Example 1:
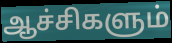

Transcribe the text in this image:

ஆச்சிகளும்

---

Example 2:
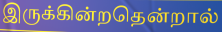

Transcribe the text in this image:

இருக்கின்றதென்றால்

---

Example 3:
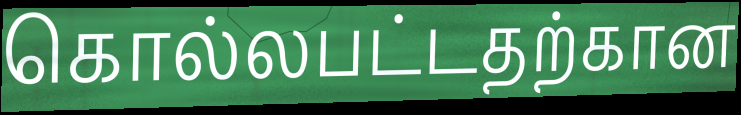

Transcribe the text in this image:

கொல்லபட்டதற்கான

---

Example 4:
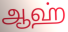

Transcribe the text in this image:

ஆஹ்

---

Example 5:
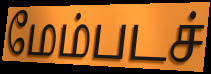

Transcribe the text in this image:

மேம்படச்